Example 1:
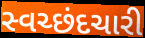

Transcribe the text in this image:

સ્વચ્છંદચારી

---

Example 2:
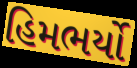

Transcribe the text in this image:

હિમભર્યો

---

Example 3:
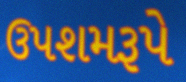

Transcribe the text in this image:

ઉપશમરૂપે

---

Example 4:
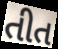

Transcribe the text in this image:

તીત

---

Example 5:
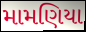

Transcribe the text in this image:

મામણિયા